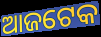
ଆଜଟେକ